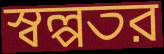
স্বল্পতর